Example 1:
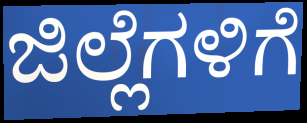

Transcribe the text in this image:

ಜಿಲ್ಲೆಗಳಿಗೆ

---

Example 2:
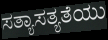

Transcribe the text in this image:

ಸತ್ಯಾಸತ್ಯತೆಯು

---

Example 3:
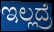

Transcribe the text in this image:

ಇಲ್ಲದ್ರೆ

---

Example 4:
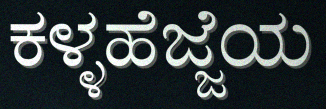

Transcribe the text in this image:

ಕಳ್ಳಹೆಜ್ಜೆಯ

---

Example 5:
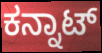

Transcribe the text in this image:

ಕನ್ನಾಟ್